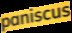
paniscus